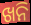
ଖନି